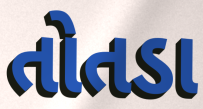
તોતડા